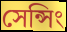
সেন্সিং